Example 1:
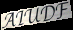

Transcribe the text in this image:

AIUDF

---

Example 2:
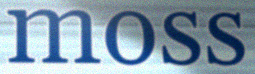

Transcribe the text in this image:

moss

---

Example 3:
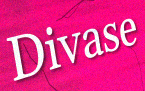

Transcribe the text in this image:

Divase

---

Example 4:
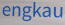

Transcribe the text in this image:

engkau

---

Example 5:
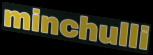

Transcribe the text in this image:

minchulli